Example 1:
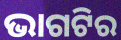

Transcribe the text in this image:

ଭାଗଟିର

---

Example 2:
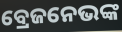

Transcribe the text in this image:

ବ୍ରେଜନେଭଙ୍କ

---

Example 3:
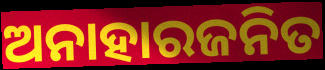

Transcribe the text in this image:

ଅନାହାରଜନିତ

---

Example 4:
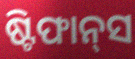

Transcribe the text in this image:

ଷ୍ଟିଫାନ୍‍ସ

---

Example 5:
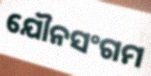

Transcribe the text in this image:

ଯୌନସଂଗମ